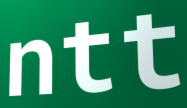
ntt